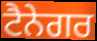
ਟੈਨੇਗਰ